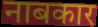
नाबकार